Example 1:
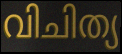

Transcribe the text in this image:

വിചിത്യ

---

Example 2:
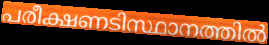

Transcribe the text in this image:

പരീക്ഷണടിസ്ഥാനത്തിൽ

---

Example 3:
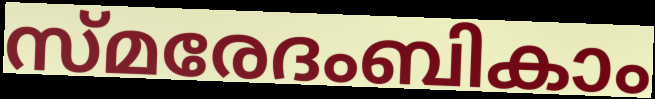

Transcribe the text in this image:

സ്മരേദംബികാം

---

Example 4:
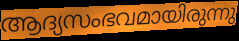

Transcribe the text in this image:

ആദ്യസംഭവമായിരുന്നു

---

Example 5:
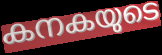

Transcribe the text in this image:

കനകയുടെ